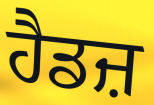
ਹੈਡਜ਼